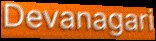
Devanagari